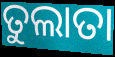
ତୁଲାତା